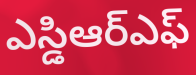
ఎస్డిఆర్ఎఫ్